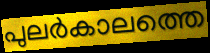
പുലർകാലത്തെ